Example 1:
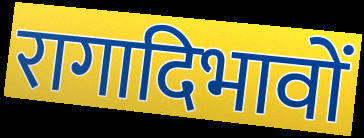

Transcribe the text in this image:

रागादिभावों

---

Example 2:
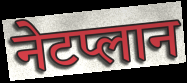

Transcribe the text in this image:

नेटप्लान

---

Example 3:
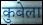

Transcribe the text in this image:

कुबेला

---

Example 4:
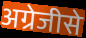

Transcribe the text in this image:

अग्रेजीसे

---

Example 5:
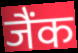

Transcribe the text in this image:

जैंक